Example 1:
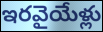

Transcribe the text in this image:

ఇరవైయేళ్లు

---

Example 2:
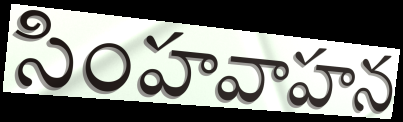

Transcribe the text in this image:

సింహవాహన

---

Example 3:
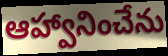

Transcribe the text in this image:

ఆహ్వానించేను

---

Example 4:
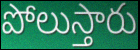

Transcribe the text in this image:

పోలుస్తారు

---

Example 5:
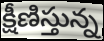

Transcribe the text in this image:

క్షీణిస్తున్న